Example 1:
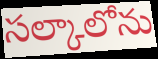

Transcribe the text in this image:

సల్కాలోను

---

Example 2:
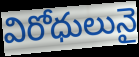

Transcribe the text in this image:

విరోధులునై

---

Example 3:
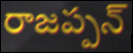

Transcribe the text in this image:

రాజప్పన్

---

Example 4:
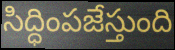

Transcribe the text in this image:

సిద్ధింపజేస్తుంది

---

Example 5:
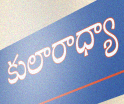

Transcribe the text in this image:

కులారాధ్యా